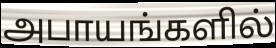
அபாயங்களில்